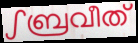
ഽബ്രവീത്